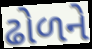
ઢોળને